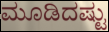
ಮೂಡಿದಷ್ಟು